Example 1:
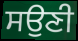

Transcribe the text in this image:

ਸਉਣੀ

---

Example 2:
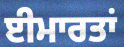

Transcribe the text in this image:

ਈਮਾਰਤਾਂ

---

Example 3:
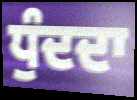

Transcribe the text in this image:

ਧੁੰਦਦਾ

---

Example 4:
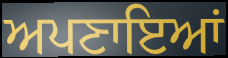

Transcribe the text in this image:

ਅਪਣਾਇਆਂ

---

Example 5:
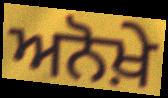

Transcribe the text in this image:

ਅਨੋਖ਼ੇ